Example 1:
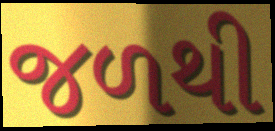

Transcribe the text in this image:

જળથી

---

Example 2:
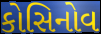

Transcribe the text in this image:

કોસિનોવ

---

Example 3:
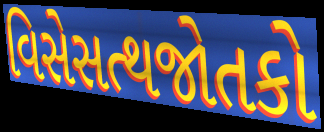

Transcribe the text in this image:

વિસેસત્થજોતકો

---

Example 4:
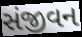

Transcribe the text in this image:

સંજીવન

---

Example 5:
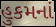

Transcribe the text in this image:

હુકમનાં